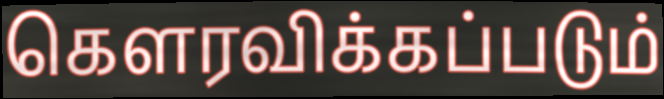
கௌரவிக்கப்படும்